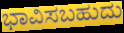
ಭಾವಿಸಬಹುದು